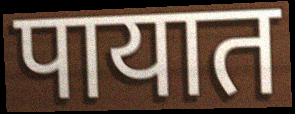
पायात